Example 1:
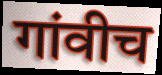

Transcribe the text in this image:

गांवीच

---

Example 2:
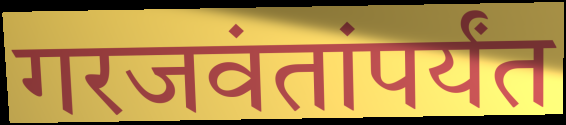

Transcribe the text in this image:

गरजवंतांपर्यंत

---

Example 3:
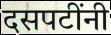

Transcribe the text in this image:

दसपटींनी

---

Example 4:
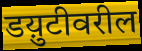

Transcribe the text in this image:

डय़ुटीवरील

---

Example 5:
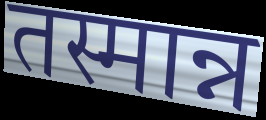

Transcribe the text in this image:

तस्मान्न